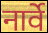
नार्वे